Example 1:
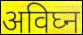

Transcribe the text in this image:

अविघ्न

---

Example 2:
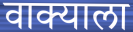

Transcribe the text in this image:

वाक्याला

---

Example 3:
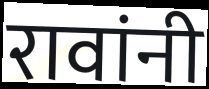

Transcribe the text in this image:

रावांनी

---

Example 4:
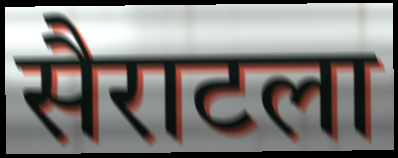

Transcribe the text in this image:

सैराटला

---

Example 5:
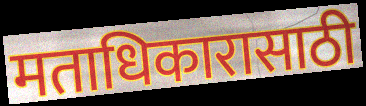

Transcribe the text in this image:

मताधिकारासाठी